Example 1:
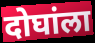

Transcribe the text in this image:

दोघांला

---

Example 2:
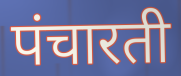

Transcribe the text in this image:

पंचारती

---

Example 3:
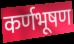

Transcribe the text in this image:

कर्णभूषण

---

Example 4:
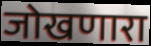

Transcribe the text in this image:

जोखणारा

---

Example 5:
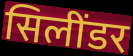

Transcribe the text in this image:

सिलींडर